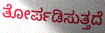
ತೋರ್ಪಡಿಸುತ್ತದೆ